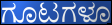
ಗೂಟಗಳೂ